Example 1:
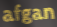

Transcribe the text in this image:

afgan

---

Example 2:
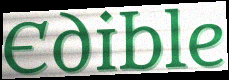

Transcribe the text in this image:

Edible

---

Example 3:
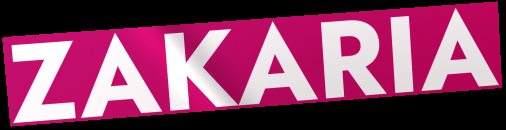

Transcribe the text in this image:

ZAKARIA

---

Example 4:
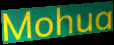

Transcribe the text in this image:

Mohua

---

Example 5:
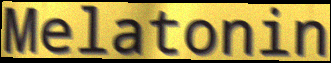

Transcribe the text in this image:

Melatonin